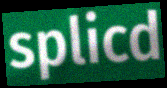
splicd